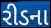
રીડના